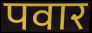
पवार